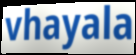
vhayala